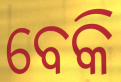
ବେକି